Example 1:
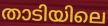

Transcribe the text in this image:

താടിയിലെ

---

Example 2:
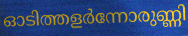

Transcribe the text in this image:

ഓടിത്തളർന്നോരുണ്ണി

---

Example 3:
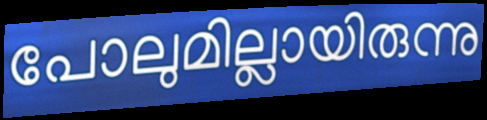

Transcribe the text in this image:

പോലുമില്ലായിരുന്നു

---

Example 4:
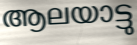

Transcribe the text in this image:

ആലയാട്ടു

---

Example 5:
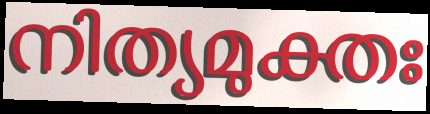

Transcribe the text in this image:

നിത്യമുക്തഃ